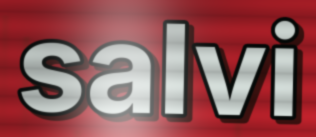
salvi